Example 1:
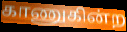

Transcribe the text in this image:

காணுகின்ற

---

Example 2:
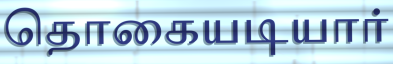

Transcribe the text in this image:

தொகையடியார்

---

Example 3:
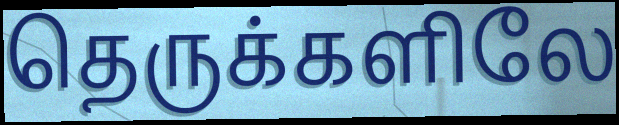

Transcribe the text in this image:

தெருக்களிலே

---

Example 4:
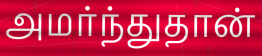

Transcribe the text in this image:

அமர்ந்துதான்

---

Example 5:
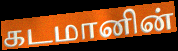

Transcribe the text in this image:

கடமானின்